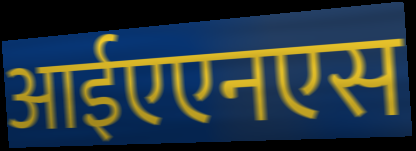
आईएएनएस